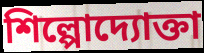
শিল্পোদ্যোক্তা